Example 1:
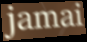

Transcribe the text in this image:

jamai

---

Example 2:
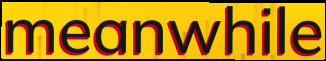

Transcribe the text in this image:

meanwhile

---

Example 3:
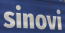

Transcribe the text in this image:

sinovi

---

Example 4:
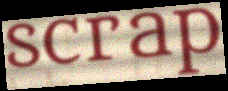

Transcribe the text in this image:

scrap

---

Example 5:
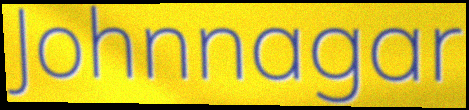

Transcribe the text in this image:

Johnnagar